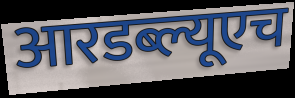
आरडब्ल्यूएच